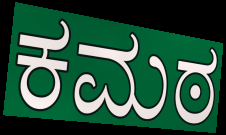
ಕಮಠ